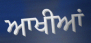
ਆਖੀਆਂ